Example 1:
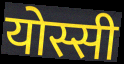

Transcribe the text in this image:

योस्सी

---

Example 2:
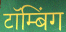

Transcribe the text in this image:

टॉम्बिंग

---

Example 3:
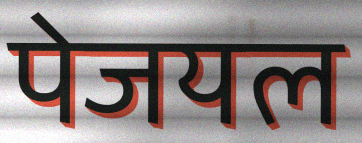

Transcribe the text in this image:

पेजयल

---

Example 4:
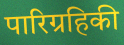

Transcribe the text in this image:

पारिग्रहिकी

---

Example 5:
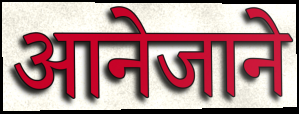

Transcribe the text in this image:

आनेजाने